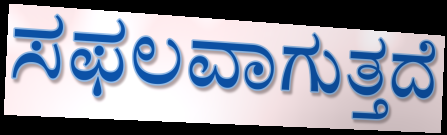
ಸಫಲವಾಗುತ್ತದೆ